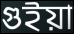
গুইয়া